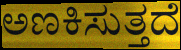
ಅಣಕಿಸುತ್ತದೆ